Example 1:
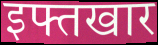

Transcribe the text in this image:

इफ्तखार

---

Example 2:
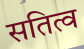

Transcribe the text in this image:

सतित्व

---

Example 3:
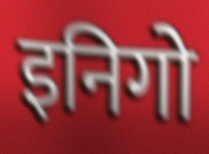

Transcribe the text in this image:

इनिगो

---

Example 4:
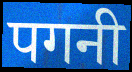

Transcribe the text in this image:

पगनी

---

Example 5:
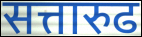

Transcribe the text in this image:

सत्तारुढ